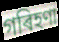
গৰিহণা